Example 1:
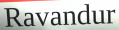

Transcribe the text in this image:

Ravandur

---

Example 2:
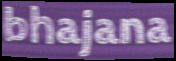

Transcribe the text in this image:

bhajana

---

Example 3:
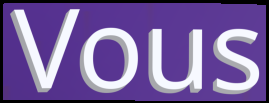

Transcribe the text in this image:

Vous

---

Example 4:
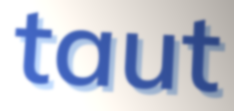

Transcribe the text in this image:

taut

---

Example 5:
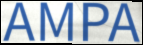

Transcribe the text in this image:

AMPA